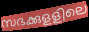
സഭക്കുളളിലെ